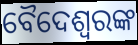
ବୈଦେଶ୍ୱରଙ୍କ